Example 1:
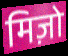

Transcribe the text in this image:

मिज़ो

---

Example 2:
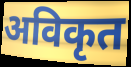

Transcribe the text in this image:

अविकृत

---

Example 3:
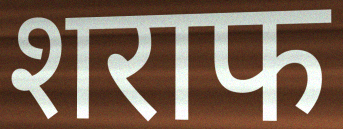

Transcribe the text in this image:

शराफ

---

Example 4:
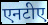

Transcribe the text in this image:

एनटीए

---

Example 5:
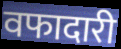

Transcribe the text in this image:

वफादारी